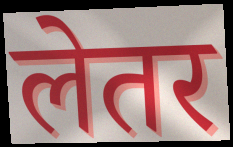
लेतर